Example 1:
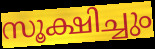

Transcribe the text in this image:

സൂക്ഷിച്ചും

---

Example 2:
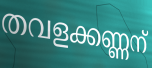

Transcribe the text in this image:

തവളക്കണ്ണന്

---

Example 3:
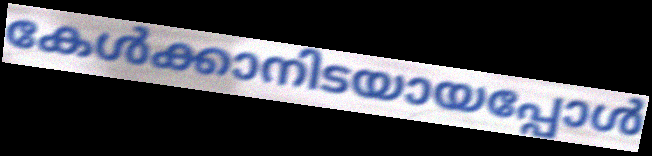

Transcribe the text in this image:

കേൾക്കാനിടയായപ്പോൾ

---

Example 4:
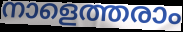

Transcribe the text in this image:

നാളെത്തരാം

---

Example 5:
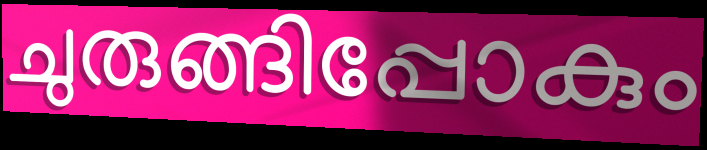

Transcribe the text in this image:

ചുരുങ്ങിപ്പോകും